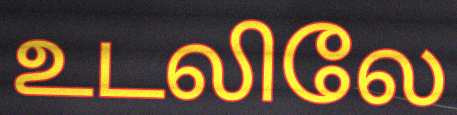
உடலிலே